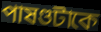
পাষণ্ডটাকে